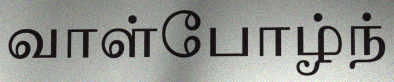
வாள்போழ்ந்